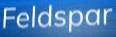
Feldspar